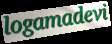
logamadevi